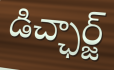
డిచ్ఛార్జ్